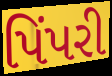
પિંપરી